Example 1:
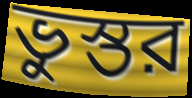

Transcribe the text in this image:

ভুস্তর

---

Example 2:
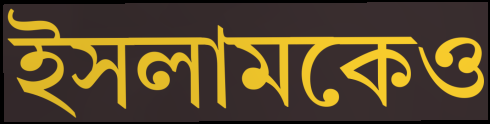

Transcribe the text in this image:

ইসলামকেও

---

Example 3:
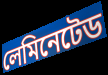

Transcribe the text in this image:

লেমিনেটেড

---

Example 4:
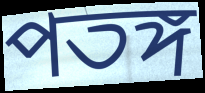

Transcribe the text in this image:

পতঙ্গ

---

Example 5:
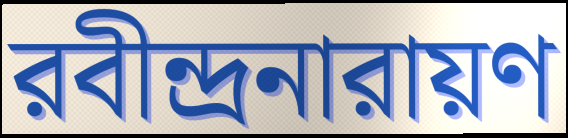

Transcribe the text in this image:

রবীন্দ্রনারায়ণ